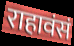
राहावंसं